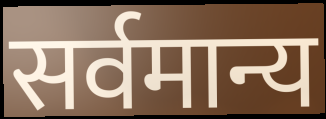
सर्वमान्य